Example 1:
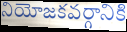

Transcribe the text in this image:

నియోజకవర్గానికి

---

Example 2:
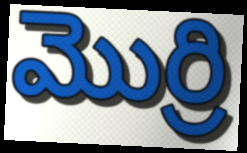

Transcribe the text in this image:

మొర్రి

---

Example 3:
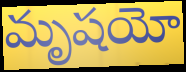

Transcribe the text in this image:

మృషయో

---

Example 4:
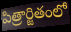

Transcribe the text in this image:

పిత్రార్జితంలో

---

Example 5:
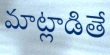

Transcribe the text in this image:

మాట్లాడితే